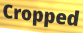
Cropped